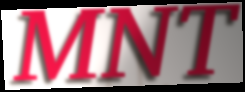
MNT